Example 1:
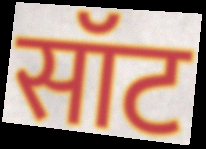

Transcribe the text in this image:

सॉट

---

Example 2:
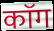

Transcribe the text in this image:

कॉग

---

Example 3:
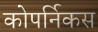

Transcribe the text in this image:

कोपर्निकस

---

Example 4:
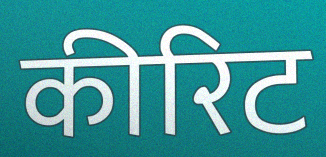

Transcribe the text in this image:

कीरिट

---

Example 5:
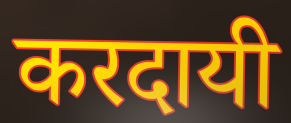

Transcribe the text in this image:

करदायी